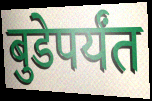
बुडेपर्यंत